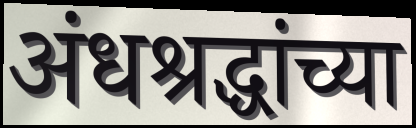
अंधश्रद्धांच्या